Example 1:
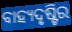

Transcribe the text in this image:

ବାହ୍ୟଦୃଷ୍ଟିର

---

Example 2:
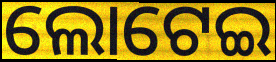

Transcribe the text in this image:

ଲୋଟେଇ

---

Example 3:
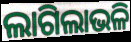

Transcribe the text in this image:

ଲାଗିଲାଭଳି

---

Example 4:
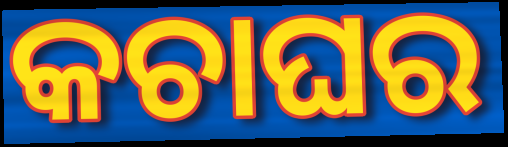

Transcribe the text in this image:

କଚାଘର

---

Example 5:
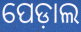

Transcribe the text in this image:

ପେଡ଼ାଲ